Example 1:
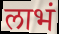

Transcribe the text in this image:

लाभं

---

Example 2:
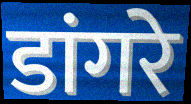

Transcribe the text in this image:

डांगरे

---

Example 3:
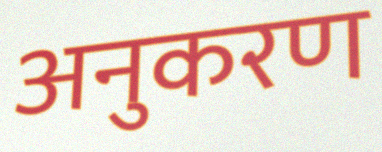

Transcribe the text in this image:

अनुकरण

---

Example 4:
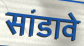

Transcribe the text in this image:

सांडावे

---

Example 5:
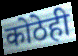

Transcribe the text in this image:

कोठेही